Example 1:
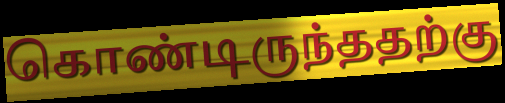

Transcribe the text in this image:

கொண்டிருந்ததற்கு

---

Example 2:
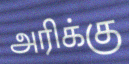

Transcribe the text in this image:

அரிக்கு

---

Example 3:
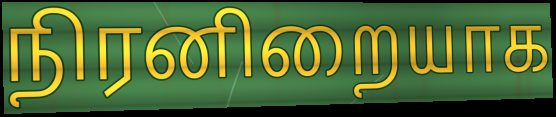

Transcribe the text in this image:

நிரனிறையாக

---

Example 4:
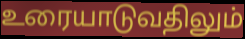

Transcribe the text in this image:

உரையாடுவதிலும்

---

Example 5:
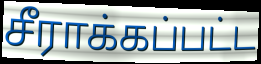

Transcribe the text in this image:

சீராக்கப்பட்ட